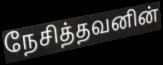
நேசித்தவனின்